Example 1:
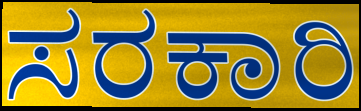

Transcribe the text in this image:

ಸರಕಾರಿ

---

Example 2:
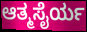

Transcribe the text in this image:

ಆತ್ಮಸೈರ್ಯ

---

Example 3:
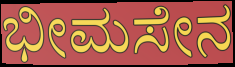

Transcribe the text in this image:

ಭೀಮಸೇನ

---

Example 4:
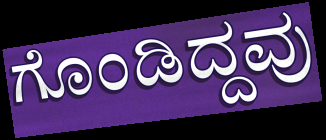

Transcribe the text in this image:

ಗೊಂಡಿದ್ದವು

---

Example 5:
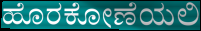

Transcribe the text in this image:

ಹೊರಕೋಣೆಯಲಿ